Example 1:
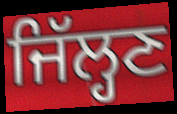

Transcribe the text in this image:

ਜਿੱਲ੍ਹਣ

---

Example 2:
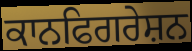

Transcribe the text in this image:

ਕਾਨਫਿਗਰੇਸ਼ਨ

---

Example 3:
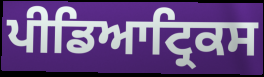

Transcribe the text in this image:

ਪੀਡਿਆਟ੍ਰਿਕਸ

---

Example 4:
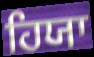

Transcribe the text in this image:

ਹਿਯਾ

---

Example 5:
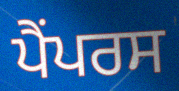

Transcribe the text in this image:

ਪੈਂਪਰਸ